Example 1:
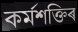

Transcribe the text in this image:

কৰ্মশক্তিৰ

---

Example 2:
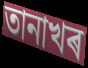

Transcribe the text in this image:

তানাখৰ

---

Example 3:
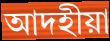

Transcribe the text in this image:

আদহীয়া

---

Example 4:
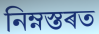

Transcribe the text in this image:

নিম্নস্তৰত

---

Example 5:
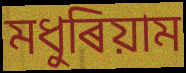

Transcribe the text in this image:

মধুৰিয়াম